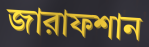
জারাফশান